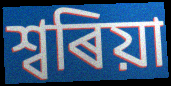
শ্বৰিয়া